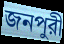
জনপুরী